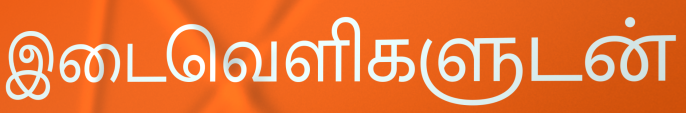
இடைவெளிகளுடன்